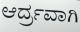
ಆರ್ದ್ರವಾಗಿ